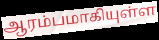
ஆரம்பமாகியுள்ள